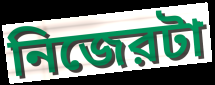
নিজেরটা